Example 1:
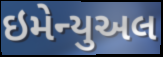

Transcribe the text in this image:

ઇમેન્યુઅલ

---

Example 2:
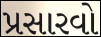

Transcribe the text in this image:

પ્રસારવો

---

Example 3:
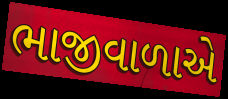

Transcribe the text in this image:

ભાજીવાળાએ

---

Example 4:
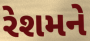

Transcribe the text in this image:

રેશમને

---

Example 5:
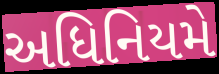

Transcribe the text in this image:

અધિનિયમે